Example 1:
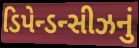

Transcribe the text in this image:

ડિપેન્ડન્સીઝનું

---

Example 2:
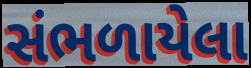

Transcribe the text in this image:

સંભળાયેલા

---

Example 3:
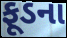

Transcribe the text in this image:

ફૂડના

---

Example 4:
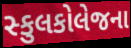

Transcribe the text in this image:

સ્કુલકોલેજના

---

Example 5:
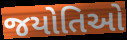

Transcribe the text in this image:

જયોતિઓ